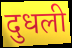
दुधली